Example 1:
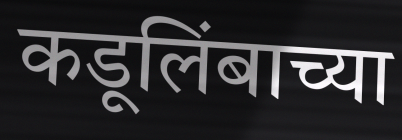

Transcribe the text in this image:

कडूलिंबाच्या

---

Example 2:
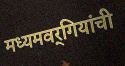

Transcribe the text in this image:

मध्यमवर्गियांची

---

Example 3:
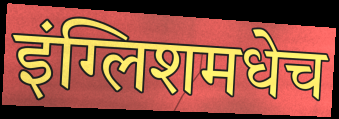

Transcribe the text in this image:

इंग्लिशमधेच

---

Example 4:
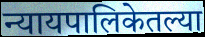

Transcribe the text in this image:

न्यायपालिकेतल्या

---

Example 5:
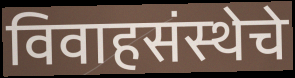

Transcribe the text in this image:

विवाहसंस्थेचे